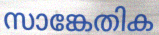
സാങ്കേതിക